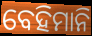
ବେହିମାନି